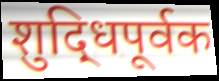
शुद्धिपूर्वक